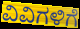
ವಿವಿಗಳಿಗೆ